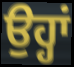
ਉਹ੍ਹਾਂ